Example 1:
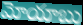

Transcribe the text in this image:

మోయాబు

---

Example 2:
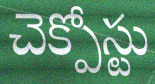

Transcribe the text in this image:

చెక్పోస్టు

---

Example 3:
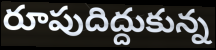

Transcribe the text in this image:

రూపుదిద్దుకున్న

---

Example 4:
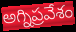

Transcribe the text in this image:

అగ్నిప్రవేశం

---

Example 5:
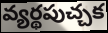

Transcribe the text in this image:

వ్యర్థపుచ్చక